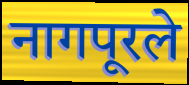
नागपूरले